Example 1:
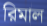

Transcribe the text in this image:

রিমাল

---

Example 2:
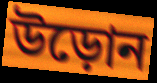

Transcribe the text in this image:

উড়োন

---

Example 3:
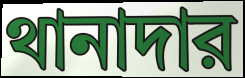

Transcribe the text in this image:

থানাদার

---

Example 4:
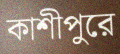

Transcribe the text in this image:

কাশীপুরে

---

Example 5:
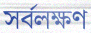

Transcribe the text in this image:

সর্বলক্ষণ